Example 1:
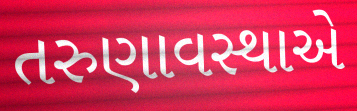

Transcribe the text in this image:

તરુણાવસ્થાએ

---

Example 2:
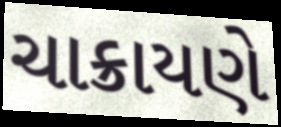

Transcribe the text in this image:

ચાક્રાયણે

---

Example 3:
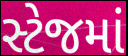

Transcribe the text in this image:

સ્ટેજમાં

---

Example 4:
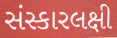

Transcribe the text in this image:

સંસ્કારલક્ષી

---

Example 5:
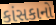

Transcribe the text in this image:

કાંસકાનો